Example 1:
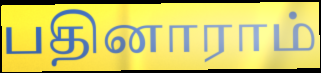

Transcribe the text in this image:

பதினாராம்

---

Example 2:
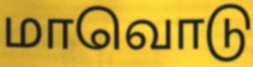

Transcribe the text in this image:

மாவொடு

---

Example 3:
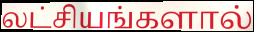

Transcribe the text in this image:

லட்சியங்களால்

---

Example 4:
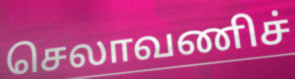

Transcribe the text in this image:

செலாவணிச்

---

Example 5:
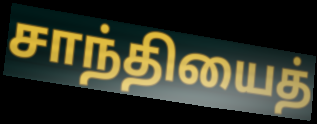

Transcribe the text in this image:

சாந்தியைத்